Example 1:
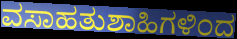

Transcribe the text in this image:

ವಸಾಹತುಶಾಹಿಗಳಿಂದ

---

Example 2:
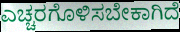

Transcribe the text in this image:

ಎಚ್ಚರಗೊಳಿಸಬೇಕಾಗಿದೆ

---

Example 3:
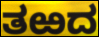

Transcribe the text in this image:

ತಱದ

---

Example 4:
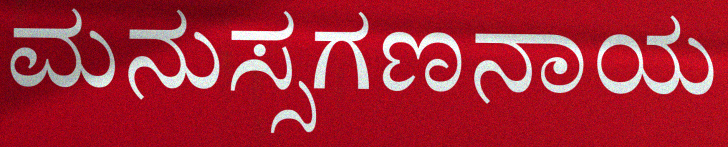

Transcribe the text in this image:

ಮನುಸ್ಸಗಣನಾಯ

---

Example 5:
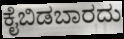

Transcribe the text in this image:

ಕೈಬಿಡಬಾರದು